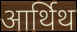
आर्थिथ